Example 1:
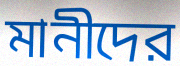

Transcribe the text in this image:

মানীদের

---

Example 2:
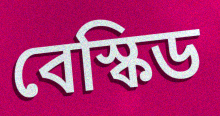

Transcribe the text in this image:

বেস্কিড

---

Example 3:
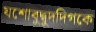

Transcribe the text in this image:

যশোবুদ্বুদদিগকে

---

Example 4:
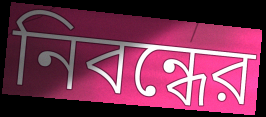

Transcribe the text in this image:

নিবন্ধের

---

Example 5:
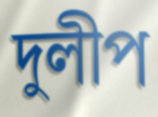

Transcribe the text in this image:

দুলীপ